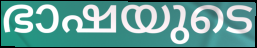
ഭാഷയുടെ